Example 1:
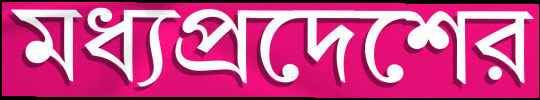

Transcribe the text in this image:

মধ্যপ্রদেশের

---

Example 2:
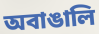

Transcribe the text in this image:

অবাঙালি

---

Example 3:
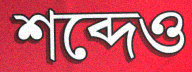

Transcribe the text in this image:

শব্দেও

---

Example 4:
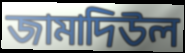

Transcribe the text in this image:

জামাদিউল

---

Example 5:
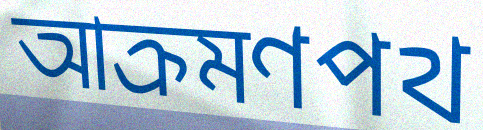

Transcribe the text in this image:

আক্রমণপথ